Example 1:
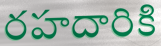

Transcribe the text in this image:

రహదారికి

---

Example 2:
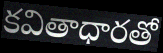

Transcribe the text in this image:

కవితాధారతో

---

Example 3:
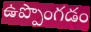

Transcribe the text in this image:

ఉప్పొంగడం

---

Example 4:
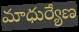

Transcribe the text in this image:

మాధుర్యేణ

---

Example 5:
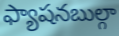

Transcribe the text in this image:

ఫ్యాషనబుల్గా